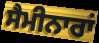
ਸੈਮੀਨਾਰਾਂ